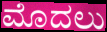
ಮೊದಲು